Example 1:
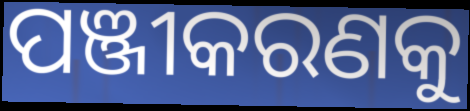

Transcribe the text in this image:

ପଞ୍ଜୀକରଣକୁ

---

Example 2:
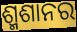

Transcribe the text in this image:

ଶ୍ମଶାନର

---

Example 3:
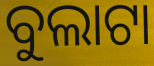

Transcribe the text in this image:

ବୁଲାଟା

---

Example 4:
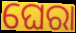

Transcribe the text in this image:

ଘେରା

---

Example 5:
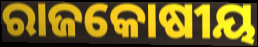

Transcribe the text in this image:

ରାଜକୋଷୀୟ